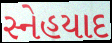
સ્નેહયાદ